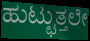
ಹುಟ್ಟುತ್ತಲೇ